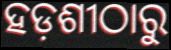
ହଡ଼ଶୀଠାରୁ